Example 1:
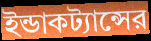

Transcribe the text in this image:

ইন্ডাকট্যান্সের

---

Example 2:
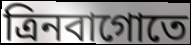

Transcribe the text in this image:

ত্রিনবাগোতে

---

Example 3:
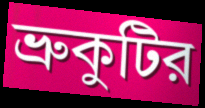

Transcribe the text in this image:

ভ্রুকুটির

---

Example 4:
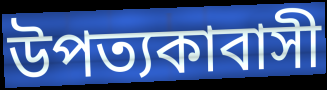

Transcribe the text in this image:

উপত্যকাবাসী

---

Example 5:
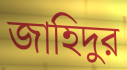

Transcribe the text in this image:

জাহিদুর